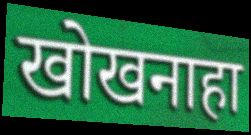
खोखनाहा